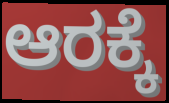
ಆರಕ್ಕೆ